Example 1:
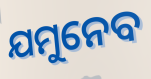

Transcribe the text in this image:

ଯମୁନେବ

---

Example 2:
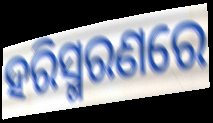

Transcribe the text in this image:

ହରିସ୍ମରଣରେ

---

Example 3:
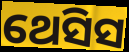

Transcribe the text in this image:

ଥେସିସ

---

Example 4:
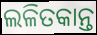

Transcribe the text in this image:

ଲଳିତକାନ୍ତ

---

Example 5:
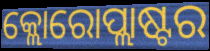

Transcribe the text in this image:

କ୍ଲୋରୋପ୍ଲାଷ୍ଟର